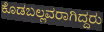
ಕೊಡಬಲ್ಲವರಾಗಿದ್ದರು